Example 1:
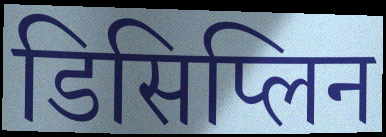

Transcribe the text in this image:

डिसिप्लिन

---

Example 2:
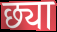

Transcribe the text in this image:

छ्या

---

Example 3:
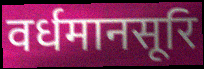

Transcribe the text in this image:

वर्धमानसूरि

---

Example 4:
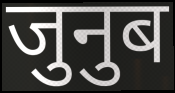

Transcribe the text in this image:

जुनुब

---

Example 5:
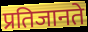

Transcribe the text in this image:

प्रतिजानते